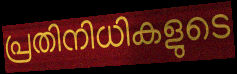
പ്രതിനിധികളുടെ